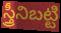
స్త్రీనిబట్టి